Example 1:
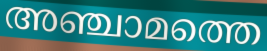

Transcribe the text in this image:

അഞ്ചാമത്തെ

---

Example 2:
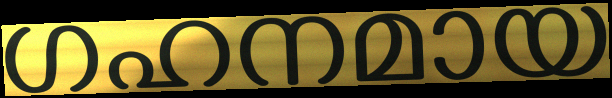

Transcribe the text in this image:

ഗഹനമായ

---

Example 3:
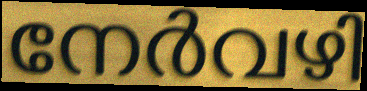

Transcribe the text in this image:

നേർവഴി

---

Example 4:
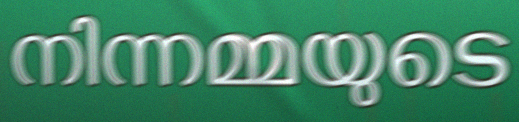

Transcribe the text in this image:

നിന്നമ്മയുടെ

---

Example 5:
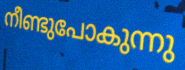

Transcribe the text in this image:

നീണ്ടുപോകുന്നു